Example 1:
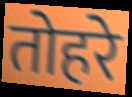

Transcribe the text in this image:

तोहरे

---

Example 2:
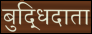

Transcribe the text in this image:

बुद्धिदाता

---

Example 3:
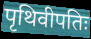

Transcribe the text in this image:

पृथिवीपतिः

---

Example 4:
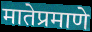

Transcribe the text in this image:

मातेप्रमाणे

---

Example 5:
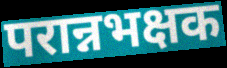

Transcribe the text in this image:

परान्नभक्षक